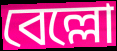
বেল্লো